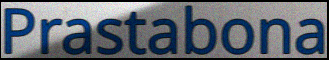
Prastabona